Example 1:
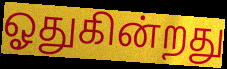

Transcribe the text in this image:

ஓதுகின்றது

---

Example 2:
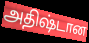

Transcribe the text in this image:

அதிஷ்டான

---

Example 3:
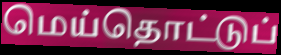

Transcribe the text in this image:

மெய்தொட்டுப்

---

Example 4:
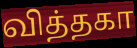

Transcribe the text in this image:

வித்தகா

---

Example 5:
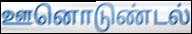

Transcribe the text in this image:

ஊனொடுண்டல்